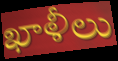
ఖాళీలు